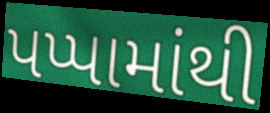
પપ્પામાંથી